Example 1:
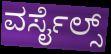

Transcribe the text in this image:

ವರ್ಸೈಲ್ಸ್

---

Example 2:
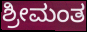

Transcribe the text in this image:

ಶ್ರೀಮಂತ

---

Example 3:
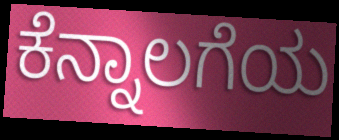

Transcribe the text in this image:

ಕೆನ್ನಾಲಗೆಯ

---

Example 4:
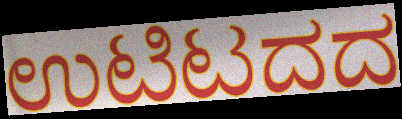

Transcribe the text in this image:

ಉಟಿಟದದ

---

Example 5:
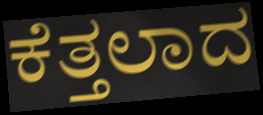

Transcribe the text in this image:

ಕೆತ್ತಲಾದ